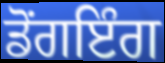
ਡੋਂਗਇੰਗ